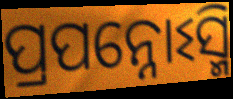
ପ୍ରପନ୍ନୋଽସ୍ମି